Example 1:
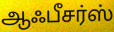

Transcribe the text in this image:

ஆஃபீசர்ஸ்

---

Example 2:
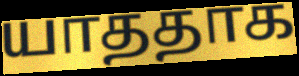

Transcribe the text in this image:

யாததாக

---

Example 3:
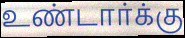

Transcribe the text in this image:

உண்டார்க்கு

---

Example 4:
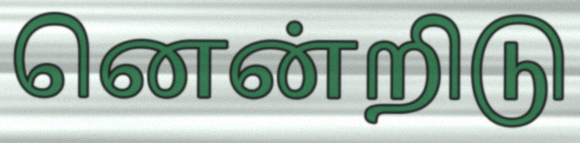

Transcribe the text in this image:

னென்றிடு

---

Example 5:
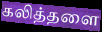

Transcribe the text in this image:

கலித்தளை